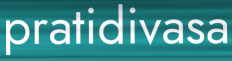
pratidivasa